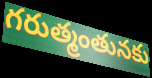
గరుత్మంతునకు